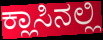
ಕ್ಲಾಸಿನಲ್ಲಿ